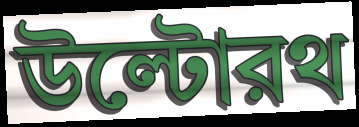
উল্টোরথ